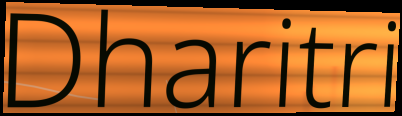
Dharitri